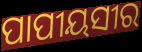
ପାପୀୟସୀର